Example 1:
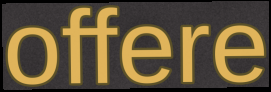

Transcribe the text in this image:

offere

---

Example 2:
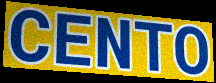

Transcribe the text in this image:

CENTO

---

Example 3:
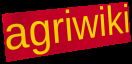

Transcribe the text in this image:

agriwiki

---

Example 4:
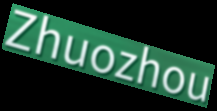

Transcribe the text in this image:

Zhuozhou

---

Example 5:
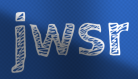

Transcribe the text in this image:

jwsr